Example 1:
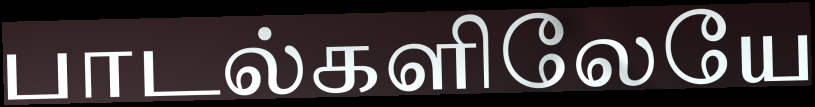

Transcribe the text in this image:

பாடல்களிலேயே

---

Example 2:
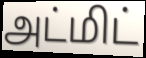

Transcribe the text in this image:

அட்மிட்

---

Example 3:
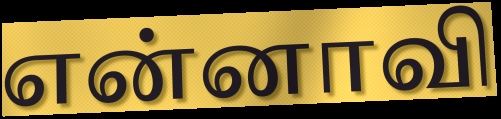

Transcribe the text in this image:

என்னாவி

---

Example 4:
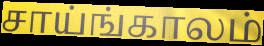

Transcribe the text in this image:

சாய்ங்காலம்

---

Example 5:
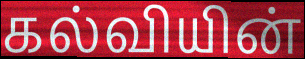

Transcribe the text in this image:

கல்வியின்